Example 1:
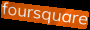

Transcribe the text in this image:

foursquare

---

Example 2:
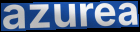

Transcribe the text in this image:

azurea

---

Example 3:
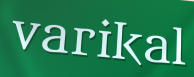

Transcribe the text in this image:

varikal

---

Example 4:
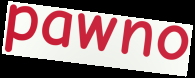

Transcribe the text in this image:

pawno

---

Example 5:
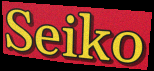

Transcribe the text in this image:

Seiko